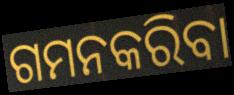
ଗମନକରିବା